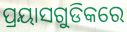
ପ୍ରୟାସଗୁଡିକରେ